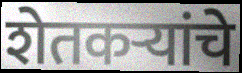
शेतकर्‍यांचे